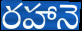
రహానె